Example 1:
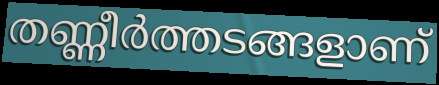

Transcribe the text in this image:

തണ്ണീർത്തടങ്ങളാണ്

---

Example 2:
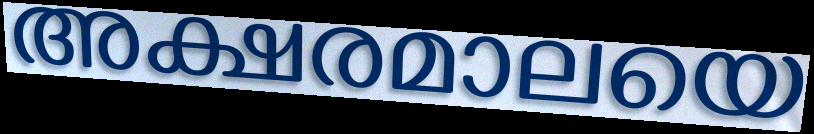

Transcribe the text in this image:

അക്ഷരമാലയെ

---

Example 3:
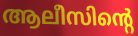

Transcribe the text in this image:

ആലീസിന്റെ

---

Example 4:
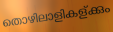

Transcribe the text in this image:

തൊഴിലാളികള്ക്കും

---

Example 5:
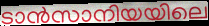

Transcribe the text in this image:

ടാൻസാനിയയിലെ